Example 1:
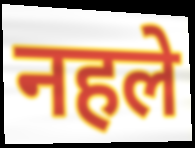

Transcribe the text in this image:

नहले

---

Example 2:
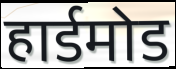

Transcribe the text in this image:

हार्डमोड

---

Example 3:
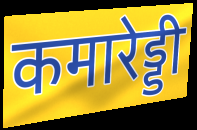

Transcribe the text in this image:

कमारेड्डी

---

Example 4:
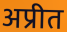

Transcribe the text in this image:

अप्रीत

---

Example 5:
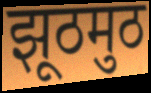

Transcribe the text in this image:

झूठमुठ